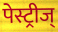
पेस्ट्रीज्